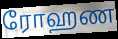
ரோஹண